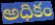
అధికం